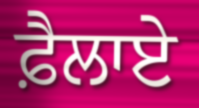
ਫ਼ੈਲਾਏ